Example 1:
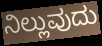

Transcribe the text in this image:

ನಿಲ್ಲುವುದು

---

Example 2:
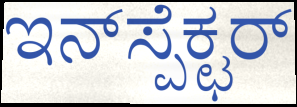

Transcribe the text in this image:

ಇನ್‌ಸ್ಪೆಕ್ಟರ್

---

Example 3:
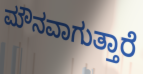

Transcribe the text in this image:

ಮೌನವಾಗುತ್ತಾರೆ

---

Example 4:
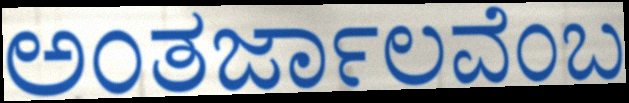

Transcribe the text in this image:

ಅಂತರ್ಜಾಲವೆಂಬ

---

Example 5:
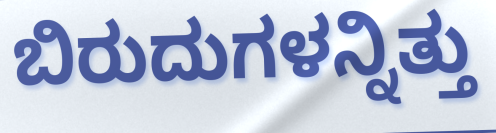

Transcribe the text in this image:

ಬಿರುದುಗಳನ್ನಿತ್ತು